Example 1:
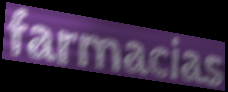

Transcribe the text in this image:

farmacias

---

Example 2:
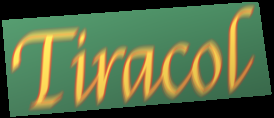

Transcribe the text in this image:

Tiracol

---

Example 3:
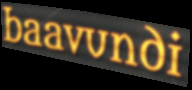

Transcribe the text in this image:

baavundi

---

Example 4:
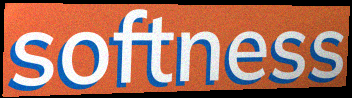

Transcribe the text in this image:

softness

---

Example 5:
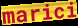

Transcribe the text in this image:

marici